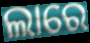
ଲାରେ